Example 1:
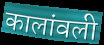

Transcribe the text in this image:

कालांवली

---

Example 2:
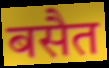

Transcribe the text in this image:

बसैत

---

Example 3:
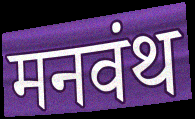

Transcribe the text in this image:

मनवंथ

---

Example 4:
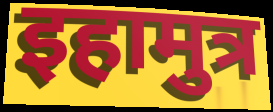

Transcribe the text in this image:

इहामुत्र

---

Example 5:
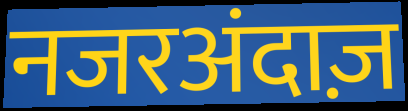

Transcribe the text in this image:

नजरअंदाज़